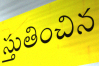
స్తుతించిన